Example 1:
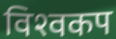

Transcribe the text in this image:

विश्वकप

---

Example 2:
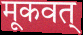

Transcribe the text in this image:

मूकवत्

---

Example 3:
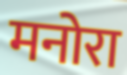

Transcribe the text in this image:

मनोरा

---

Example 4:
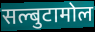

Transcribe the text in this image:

सल्बुटामोल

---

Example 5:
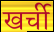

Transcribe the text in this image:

खर्ची